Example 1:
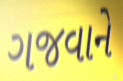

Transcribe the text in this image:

ગજવાને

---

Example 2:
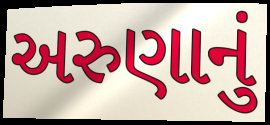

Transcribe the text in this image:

અરુણાનું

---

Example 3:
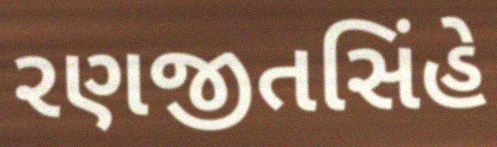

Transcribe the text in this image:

રણજીતસિંહે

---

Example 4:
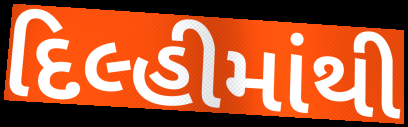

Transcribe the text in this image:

દિલ્હીમાંથી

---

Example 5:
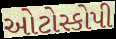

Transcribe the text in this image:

ઓટોસ્કોપી